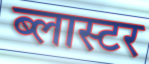
ब्लास्टर